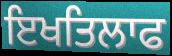
ਇਖਤਿਲਾਫ